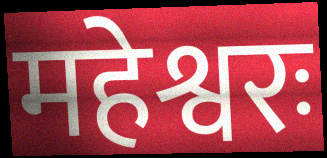
महेश्वरः